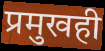
प्रमुखही